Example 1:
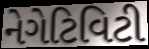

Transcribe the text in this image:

નેગેટિવિટી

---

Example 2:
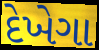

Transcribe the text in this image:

દેખેગા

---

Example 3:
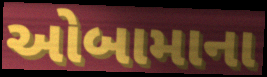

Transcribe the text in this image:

ઓબામાના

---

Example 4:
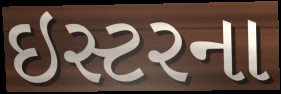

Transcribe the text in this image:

ઇસ્ટરના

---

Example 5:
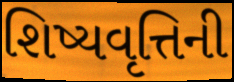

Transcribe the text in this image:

શિષ્યવૃત્તિની